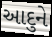
આદુને